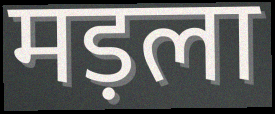
मड़ला